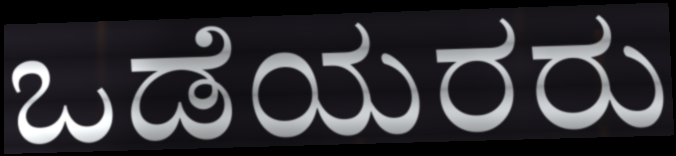
ಒಡೆಯರರು